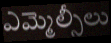
ఎమ్మెల్సీలు